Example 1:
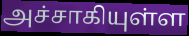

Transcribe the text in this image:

அச்சாகியுள்ள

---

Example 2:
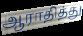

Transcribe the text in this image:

ஆராதித்து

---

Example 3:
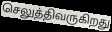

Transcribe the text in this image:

செலுத்திவருகிறது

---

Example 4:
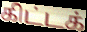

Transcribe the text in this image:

கிட்டக்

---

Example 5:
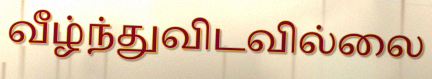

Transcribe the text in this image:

வீழ்ந்துவிடவில்லை